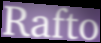
Rafto